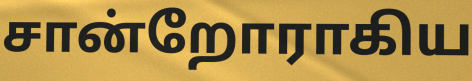
சான்றோராகிய